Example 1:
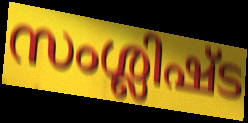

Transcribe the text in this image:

സംശ്ലിഷ്ട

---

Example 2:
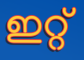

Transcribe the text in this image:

ഇറ്റ്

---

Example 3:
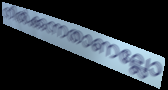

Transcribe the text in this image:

നിൽക്കുന്നതാണല്ലോ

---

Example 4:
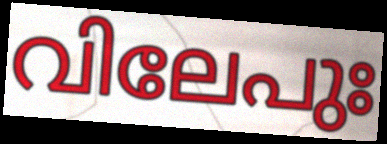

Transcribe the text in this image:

വിലേപുഃ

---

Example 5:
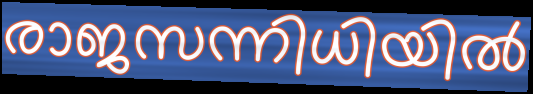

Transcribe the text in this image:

രാജസന്നിധിയിൽ